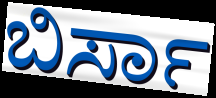
ಬಿರ್ಸಾ